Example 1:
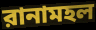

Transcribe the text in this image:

রানামহল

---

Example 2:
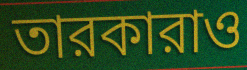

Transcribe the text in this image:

তারকারাও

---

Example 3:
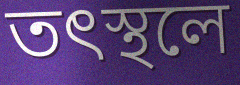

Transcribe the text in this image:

তৎস্থলে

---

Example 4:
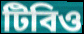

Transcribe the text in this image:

টিবিও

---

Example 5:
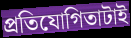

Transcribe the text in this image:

প্রতিযোগিতাটাই